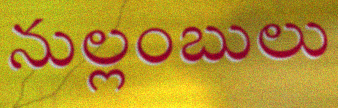
నుల్లంబులు